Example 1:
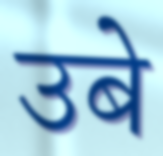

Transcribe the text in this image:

उबे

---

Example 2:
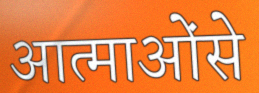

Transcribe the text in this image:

आत्माओंसे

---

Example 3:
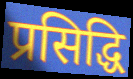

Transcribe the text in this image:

प्रसिद्धि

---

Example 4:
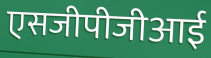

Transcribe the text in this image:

एसजीपीजीआई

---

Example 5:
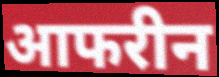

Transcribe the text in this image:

आफरीन